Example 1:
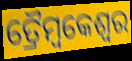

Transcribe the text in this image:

ତ୍ରୈମ୍ବକେଶ୍ୱର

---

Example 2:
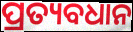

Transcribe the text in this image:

ପ୍ରତ୍ୟବଧାନ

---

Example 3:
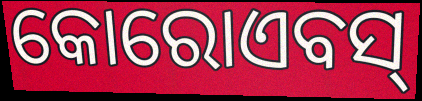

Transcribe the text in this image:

କୋରୋଏବସ୍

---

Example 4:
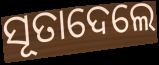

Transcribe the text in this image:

ସୂତାଦେଲେ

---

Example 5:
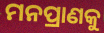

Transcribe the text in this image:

ମନପ୍ରାଣକୁ